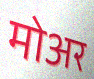
मोअर